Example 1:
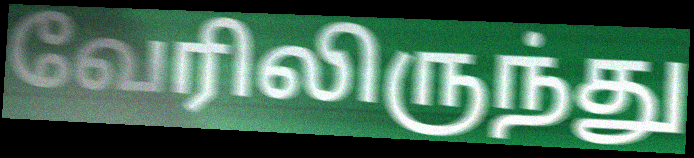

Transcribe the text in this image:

வேரிலிருந்து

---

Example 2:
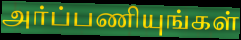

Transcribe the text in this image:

அர்ப்பணியுங்கள்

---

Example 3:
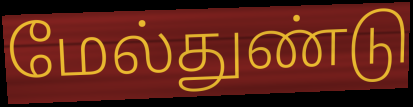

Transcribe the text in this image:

மேல்துண்டு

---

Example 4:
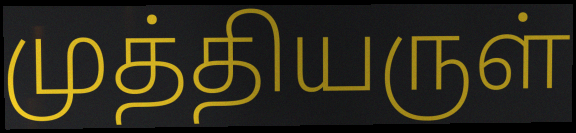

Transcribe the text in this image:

முத்தியருள்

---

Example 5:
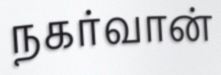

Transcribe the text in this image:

நகர்வான்